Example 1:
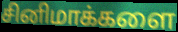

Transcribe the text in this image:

சினிமாக்களை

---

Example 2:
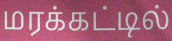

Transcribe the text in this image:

மரக்கட்டில்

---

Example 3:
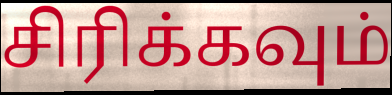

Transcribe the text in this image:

சிரிக்கவும்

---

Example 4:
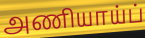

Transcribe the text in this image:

அணியாய்ப்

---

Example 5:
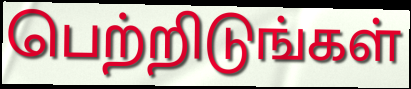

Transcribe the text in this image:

பெற்றிடுங்கள்